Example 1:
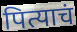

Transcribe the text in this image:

पित्याचं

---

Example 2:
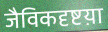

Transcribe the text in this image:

जैविकदृष्टय़ा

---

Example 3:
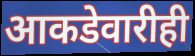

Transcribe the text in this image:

आकडेवारीही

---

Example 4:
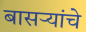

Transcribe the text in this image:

बासऱ्यांचे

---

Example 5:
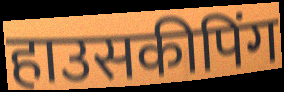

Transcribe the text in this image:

हाउसकीपिंग